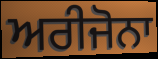
ਅਰੀਜੋਨਾ